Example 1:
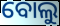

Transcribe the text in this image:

ବୋଲୁ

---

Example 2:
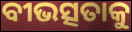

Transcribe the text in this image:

ବୀଭତ୍ସତାକୁ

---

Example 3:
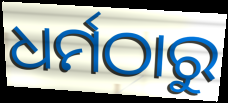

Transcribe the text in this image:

ଧର୍ମଠାରୁ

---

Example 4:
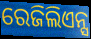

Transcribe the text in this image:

ରେଜିଲିଏନ୍ସ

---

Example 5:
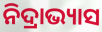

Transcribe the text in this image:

ନିଦ୍ରାଭ୍ୟାସ